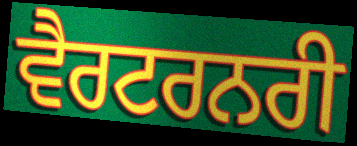
ਵੈਰਟਰਨਰੀ